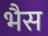
भैस